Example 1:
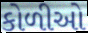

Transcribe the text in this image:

કોળીઓ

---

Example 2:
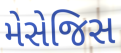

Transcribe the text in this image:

મેસેજિસ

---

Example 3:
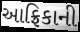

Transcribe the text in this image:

આફ્રિકાની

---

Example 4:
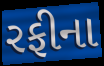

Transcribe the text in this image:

રફીના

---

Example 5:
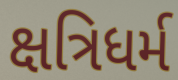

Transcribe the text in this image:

ક્ષત્રિધર્મ